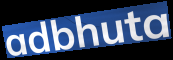
adbhuta